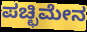
ಪಚ್ಛಿಮೇನ